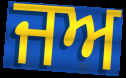
ਜਅ